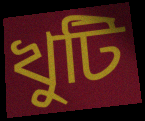
খুটি